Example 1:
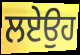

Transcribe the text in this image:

ਲਏਉਹ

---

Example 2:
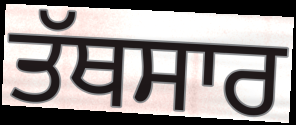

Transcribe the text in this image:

ਤੱਥਸਾਰ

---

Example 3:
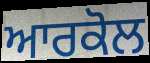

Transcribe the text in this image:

ਆਰਕੋਲ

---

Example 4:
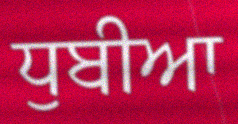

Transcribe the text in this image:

ਧੁਬੀਆ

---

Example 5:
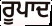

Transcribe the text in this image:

ਰੂਪਾਦ